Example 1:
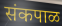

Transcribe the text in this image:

संकपाळ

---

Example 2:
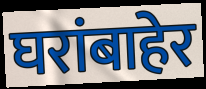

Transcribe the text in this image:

घरांबाहेर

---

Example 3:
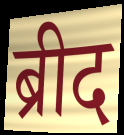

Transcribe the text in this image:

ब्रीद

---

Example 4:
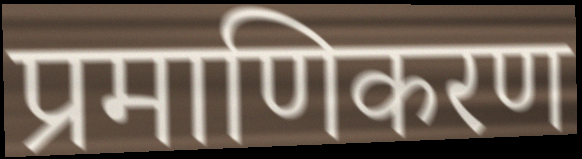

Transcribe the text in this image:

प्रमाणिकरण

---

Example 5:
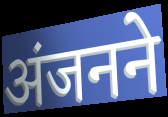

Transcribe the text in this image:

अंजनने